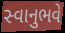
સ્વાનુભવે